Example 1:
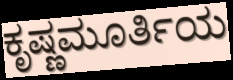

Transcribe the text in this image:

ಕೃಷ್ಣಮೂರ್ತಿಯ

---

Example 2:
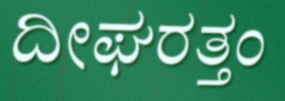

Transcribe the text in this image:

ದೀಘರತ್ತಂ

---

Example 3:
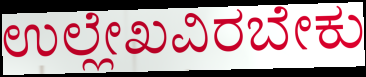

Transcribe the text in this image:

ಉಲ್ಲೇಖವಿರಬೇಕು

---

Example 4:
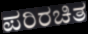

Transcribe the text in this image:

ಪರಿರಚಿತ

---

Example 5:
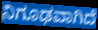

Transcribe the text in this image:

ನಿಗೂಢವಾಗಿದೆ